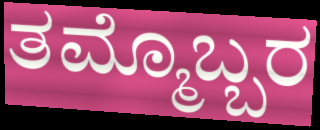
ತಮ್ಮೊಬ್ಬರ